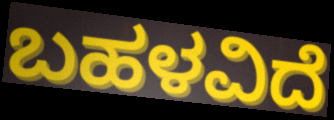
ಬಹಳವಿದೆ